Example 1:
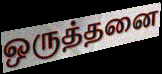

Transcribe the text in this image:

ஒருத்தனை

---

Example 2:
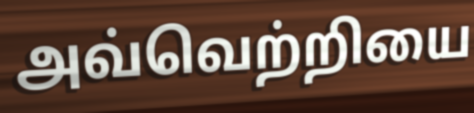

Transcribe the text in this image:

அவ்வெற்றியை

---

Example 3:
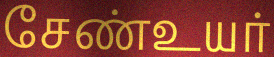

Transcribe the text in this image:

சேண்உயர்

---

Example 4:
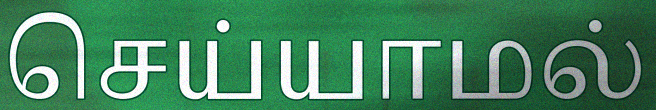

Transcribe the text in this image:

செய்யாமல்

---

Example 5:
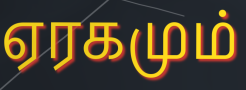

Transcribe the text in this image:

ஏரகமும்